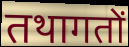
तथागतों